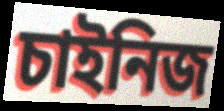
চাইনিজ